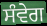
ਸੰਵੇਗ